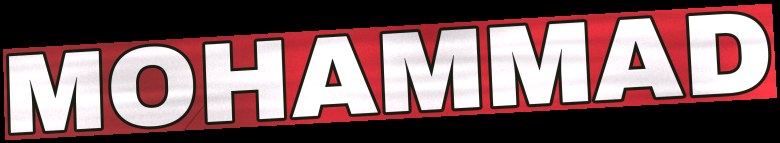
MOHAMMAD